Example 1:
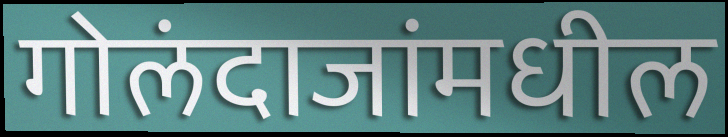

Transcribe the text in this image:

गोलंदाजांमधील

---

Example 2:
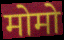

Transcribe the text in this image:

मोमो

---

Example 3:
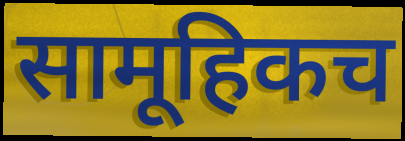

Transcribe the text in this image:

सामूहिकच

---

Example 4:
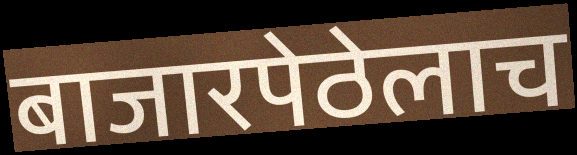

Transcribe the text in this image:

बाजारपेठेलाच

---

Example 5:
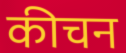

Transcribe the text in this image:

कीचन